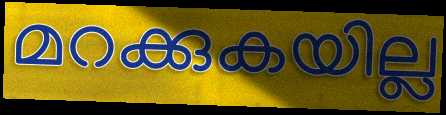
മറക്കുകയില്ല